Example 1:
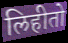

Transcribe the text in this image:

लिहीतो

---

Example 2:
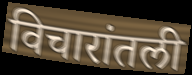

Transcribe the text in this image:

विचारांतली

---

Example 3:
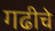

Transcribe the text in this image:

गढीचे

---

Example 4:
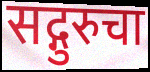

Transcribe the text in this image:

सद्गुरुचा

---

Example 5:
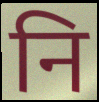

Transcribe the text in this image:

नि